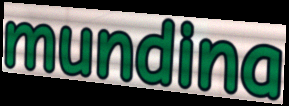
mundina